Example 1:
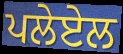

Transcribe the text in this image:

ਪਲੇਏਲ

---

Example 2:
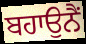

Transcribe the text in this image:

ਬਹਾਉਨੈਂ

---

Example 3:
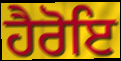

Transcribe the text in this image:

ਹੈਰੋਇ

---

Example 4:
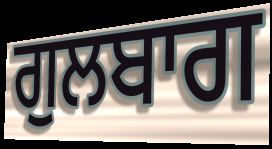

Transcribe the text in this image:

ਗੁਲਬਾਗ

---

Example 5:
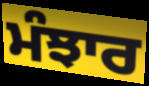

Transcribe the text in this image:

ਮੰਝਾਰ